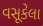
વસૂકેલા